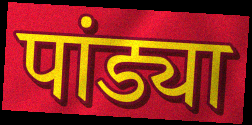
पांड्या